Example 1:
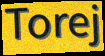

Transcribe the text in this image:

Torej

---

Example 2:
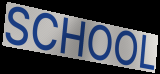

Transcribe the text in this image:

SCHOOL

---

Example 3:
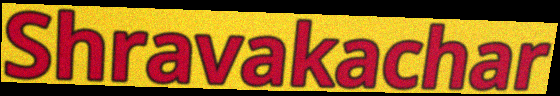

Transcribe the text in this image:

Shravakachar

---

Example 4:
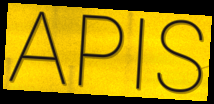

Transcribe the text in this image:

APIS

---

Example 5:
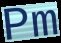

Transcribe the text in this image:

Pm